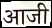
आजी